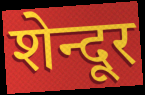
शेन्दूर